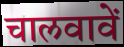
चालवावें